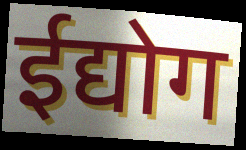
ईद्योग